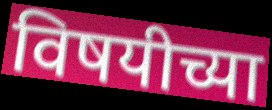
विषयीच्या